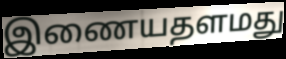
இணையதளமது